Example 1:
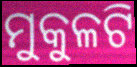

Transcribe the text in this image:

ମୁକୁଳଟି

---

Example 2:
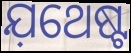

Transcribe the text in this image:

ଯ଼ଥେଷ୍ଟ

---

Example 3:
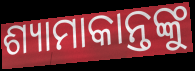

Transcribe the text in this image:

ଶ୍ୟାମାକାନ୍ତଙ୍କୁ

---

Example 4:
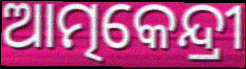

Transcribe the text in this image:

ଆତ୍ମକେନ୍ଦ୍ରୀ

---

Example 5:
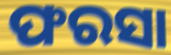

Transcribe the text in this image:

ଫରସା